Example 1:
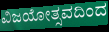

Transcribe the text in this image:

ವಿಜಯೋತ್ಸವದಿಂದ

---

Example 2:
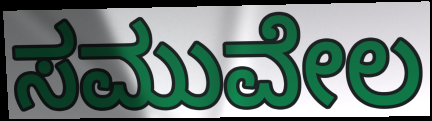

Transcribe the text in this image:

ಸಮುವೇಲ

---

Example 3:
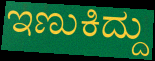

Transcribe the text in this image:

ಇಣುಕಿದ್ದು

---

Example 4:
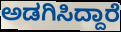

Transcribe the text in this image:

ಅಡಗಿಸಿದ್ದಾರೆ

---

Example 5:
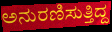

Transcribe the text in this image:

ಅನುರಣಿಸುತ್ತಿದ್ದ